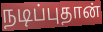
நடிப்புதான்